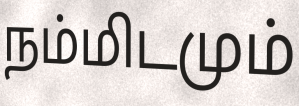
நம்மிடமும்